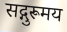
सद्गुरूमय